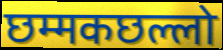
छम्मकछल्लो